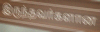
இருந்தவர்களான